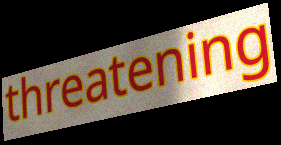
threatening